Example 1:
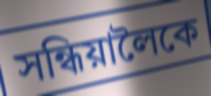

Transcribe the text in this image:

সন্ধিয়ালৈকে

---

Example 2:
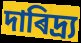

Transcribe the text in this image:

দাৰিদ্ৰ্য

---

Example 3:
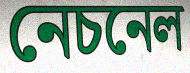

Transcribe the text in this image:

নেচনেল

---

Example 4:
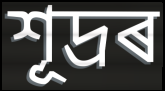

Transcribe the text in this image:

শূদ্ৰৰ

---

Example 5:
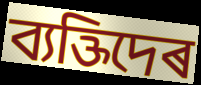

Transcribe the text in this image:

ব্যক্তিদেৰ